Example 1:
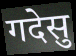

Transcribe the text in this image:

गदेसु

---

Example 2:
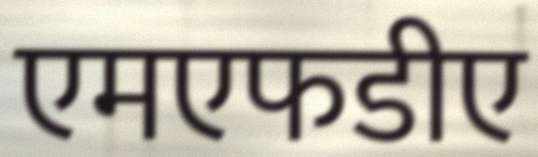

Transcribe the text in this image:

एमएफडीए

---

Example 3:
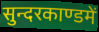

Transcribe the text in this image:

सुन्दरकाण्डमें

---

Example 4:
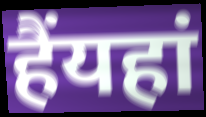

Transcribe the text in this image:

हैंयहां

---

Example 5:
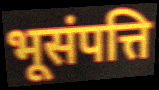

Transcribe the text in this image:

भूसंपत्ति